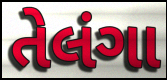
તેલંગા